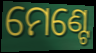
ମେଣ୍ଟେ